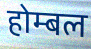
होम्बल